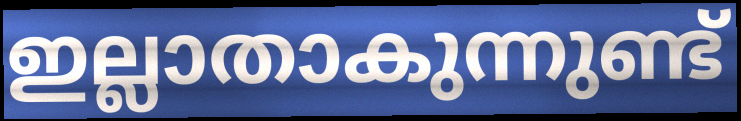
ഇല്ലാതാകുന്നുണ്ട്